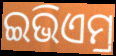
ଇଭିଏମ୍ର